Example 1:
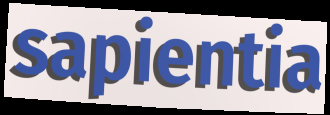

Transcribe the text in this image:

sapientia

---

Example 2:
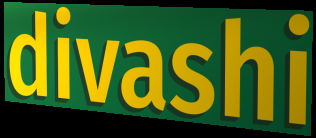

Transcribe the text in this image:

divashi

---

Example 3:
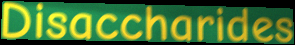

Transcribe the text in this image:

Disaccharides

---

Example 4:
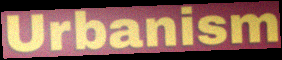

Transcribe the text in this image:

Urbanism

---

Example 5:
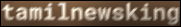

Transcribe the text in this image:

tamilnewsking